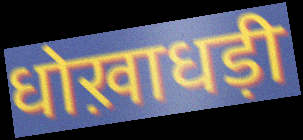
धोख़ाधड़ी